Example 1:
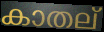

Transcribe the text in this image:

കാതല്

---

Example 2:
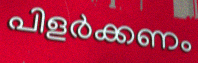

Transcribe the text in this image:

പിളർക്കണം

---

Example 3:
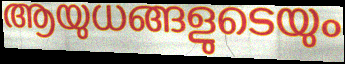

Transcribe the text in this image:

ആയുധങ്ങളുടെയും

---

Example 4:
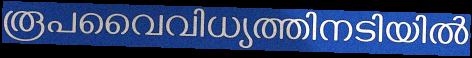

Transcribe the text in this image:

രൂപവൈവിധ്യത്തിനടിയിൽ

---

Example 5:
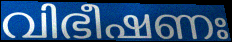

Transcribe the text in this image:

വിഭീഷണഃ